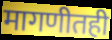
मागणीतही